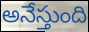
అనేస్తుంది